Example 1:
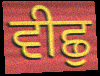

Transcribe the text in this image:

ਵੀਛੁ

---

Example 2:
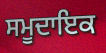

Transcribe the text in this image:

ਸਮੂਦਾਇਕ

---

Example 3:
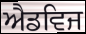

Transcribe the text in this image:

ਐਡਵਿਜ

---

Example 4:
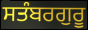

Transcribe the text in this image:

ਸਤੰਬਰਗੁਰੂ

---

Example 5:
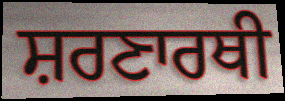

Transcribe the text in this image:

ਸ਼ਰਣਾਰਥੀ